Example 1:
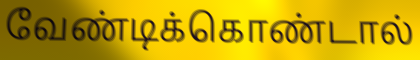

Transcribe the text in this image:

வேண்டிக்கொண்டால்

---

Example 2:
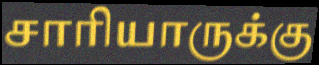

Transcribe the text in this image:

சாரியாருக்கு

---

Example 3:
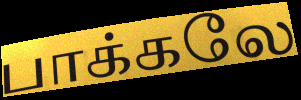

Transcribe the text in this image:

பாக்கலே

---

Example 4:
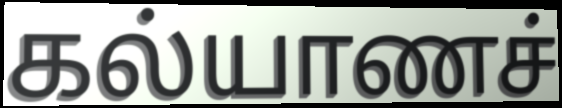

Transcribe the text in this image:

கல்யாணச்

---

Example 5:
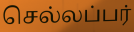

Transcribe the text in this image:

செல்லப்பர்